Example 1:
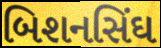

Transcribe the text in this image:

બિશનસિંઘ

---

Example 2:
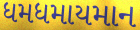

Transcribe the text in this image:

ધમધમાયમાન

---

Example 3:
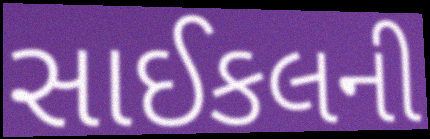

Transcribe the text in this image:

સાઈકલની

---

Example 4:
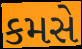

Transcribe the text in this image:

કમસે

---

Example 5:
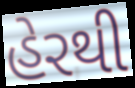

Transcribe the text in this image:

હેરથી